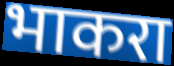
भाकरा